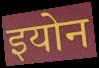
इयोन